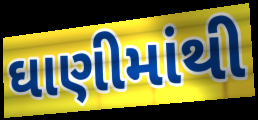
ઘાણીમાંથી